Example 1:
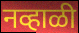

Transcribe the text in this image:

नव्हाळी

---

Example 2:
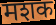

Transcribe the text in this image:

मशक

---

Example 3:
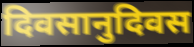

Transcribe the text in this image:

दिवसानुदिवस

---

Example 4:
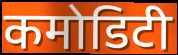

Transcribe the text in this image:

कमोडिटी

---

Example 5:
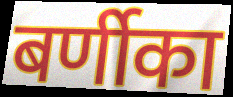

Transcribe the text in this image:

बर्णीका